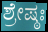
ಶ್ರೇಷ್ಠಃ